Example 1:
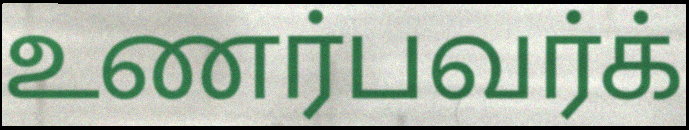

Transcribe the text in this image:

உணர்பவர்க்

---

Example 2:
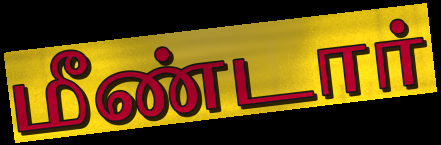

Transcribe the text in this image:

மீண்டார்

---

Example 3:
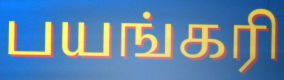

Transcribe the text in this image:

பயங்கரி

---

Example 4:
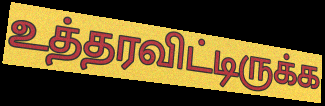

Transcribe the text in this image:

உத்தரவிட்டிருக்க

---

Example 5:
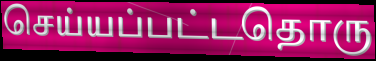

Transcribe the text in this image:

செய்யப்பட்டதொரு